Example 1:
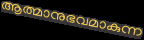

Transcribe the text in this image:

ആത്മാനുഭവമാകുന്ന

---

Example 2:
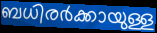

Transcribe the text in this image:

ബധിരർക്കായുള്ള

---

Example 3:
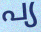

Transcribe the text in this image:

പ്യ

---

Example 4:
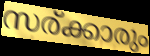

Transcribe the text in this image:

സര്ക്കാരും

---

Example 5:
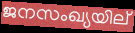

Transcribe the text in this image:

ജനസംഖ്യയില്